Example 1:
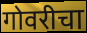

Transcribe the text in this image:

गोवरीचा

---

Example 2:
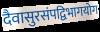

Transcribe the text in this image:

दैवासुरसंपद्विभागयोग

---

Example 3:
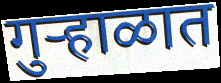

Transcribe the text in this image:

गुऱ्हाळात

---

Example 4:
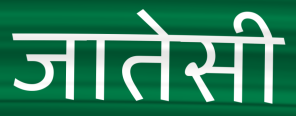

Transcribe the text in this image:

जातेसी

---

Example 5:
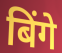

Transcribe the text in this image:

बिंगे